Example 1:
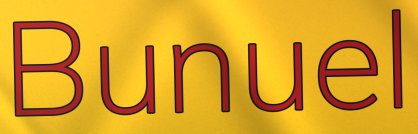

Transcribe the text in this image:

Bunuel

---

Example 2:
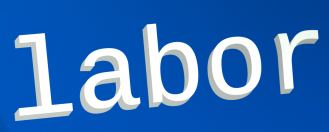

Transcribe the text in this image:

labor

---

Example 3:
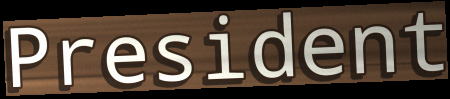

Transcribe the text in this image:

President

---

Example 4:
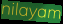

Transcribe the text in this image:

nilayam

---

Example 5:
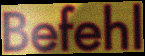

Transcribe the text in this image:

Befehl